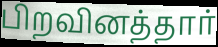
பிறவினத்தார்